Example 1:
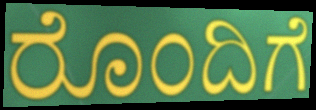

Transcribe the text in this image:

ರೊಂದಿಗೆ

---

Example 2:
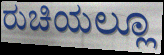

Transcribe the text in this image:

ರುಚಿಯಲ್ಲೂ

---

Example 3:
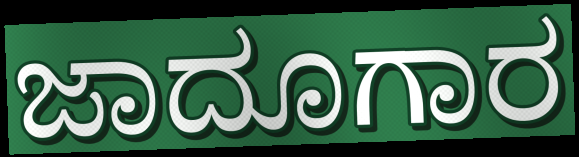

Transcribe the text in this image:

ಜಾದೂಗಾರ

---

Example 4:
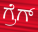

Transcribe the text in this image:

ಗ್ರೆಗ್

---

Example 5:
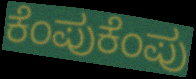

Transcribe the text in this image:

ಕೆಂಪುಕೆಂಪು